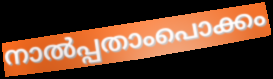
നാൽപ്പതാംപൊക്കം